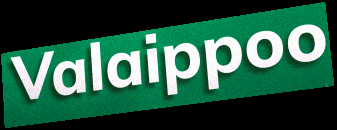
Valaippoo